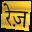
रेज़